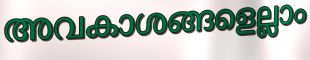
അവകാശങ്ങളെല്ലാം